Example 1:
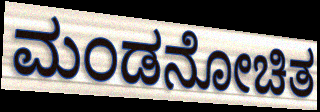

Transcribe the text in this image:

ಮಂಡನೋಚಿತ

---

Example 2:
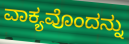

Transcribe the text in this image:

ವಾಕ್ಯವೊಂದನ್ನು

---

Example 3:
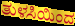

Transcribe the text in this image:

ತುಳಸಿಯಿಂದ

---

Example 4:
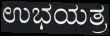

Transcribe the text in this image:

ಉಭಯತ್ರ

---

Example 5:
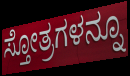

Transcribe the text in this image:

ಸ್ತೋತ್ರಗಳನ್ನೂ